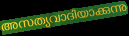
അസത്യവാദിയാക്കുന്നു